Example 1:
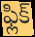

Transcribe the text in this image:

ఫ్లిక్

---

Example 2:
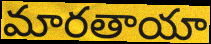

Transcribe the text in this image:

మారతాయా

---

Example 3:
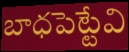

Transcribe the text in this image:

బాధపెట్టేవి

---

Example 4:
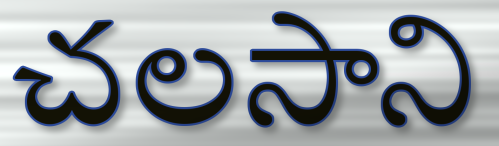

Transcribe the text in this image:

చలసాని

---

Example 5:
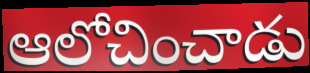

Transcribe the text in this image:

ఆలోచించాడు